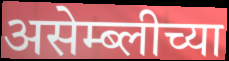
असेम्ब्लीच्या